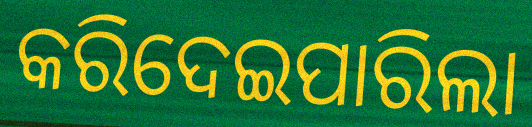
କରିଦେଇପାରିଲା